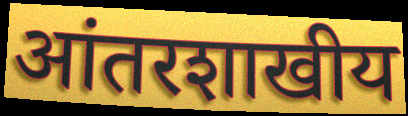
आंतरशाखीय